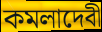
কমলাদেবী